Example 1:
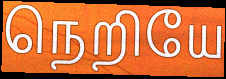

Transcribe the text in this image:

நெறியே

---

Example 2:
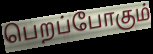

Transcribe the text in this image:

பெறப்போகும்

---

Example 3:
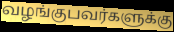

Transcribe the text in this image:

வழங்குபவர்களுக்கு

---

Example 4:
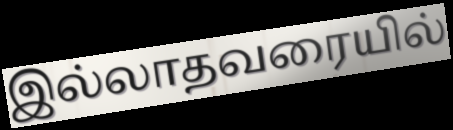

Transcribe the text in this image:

இல்லாதவரையில்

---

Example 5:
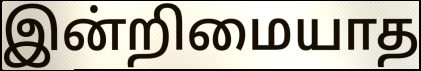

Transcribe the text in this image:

இன்றிமையாத